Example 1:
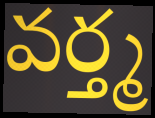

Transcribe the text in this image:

వర్త్మ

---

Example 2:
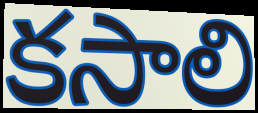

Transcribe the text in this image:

కసాలి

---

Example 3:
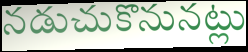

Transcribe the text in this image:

నడుచుకొనునట్లు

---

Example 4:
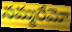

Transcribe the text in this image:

నమ్మరేమో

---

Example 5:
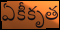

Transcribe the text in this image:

ఏకీకృత